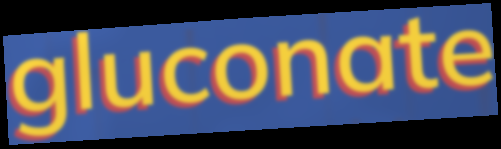
gluconate